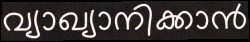
വ്യാഖ്യാനിക്കാൻ